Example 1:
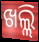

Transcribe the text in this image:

ଖଲ୍ଲି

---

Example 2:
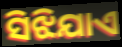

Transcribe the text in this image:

ସିଝିଯାଏ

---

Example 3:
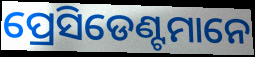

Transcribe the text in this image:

ପ୍ରେସିଡେଣ୍ଟମାନେ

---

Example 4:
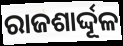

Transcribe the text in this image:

ରାଜଶାର୍ଦ୍ଦୂଳ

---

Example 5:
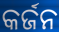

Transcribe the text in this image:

କର୍ଜନ